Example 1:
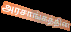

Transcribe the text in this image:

அரசாங்கத்தின்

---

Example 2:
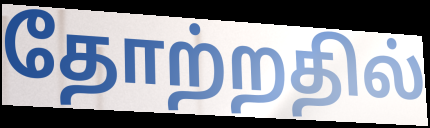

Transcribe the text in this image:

தோற்றதில்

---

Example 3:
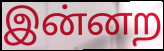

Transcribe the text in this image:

இன்னற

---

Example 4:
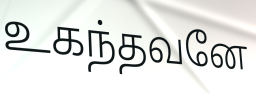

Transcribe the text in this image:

உகந்தவனே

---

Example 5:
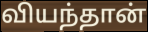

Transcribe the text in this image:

வியந்தான்